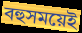
বহুসময়েই